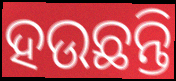
ହଉଛନ୍ତି